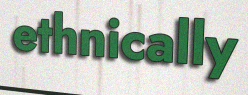
ethnically